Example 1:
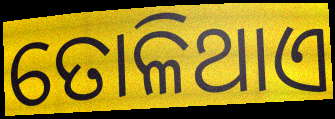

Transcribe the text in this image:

ତୋଳିଥାଏ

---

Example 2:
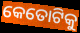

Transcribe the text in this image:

କେତୋଟିକୁ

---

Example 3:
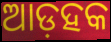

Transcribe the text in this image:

ଆଡ଼ହକ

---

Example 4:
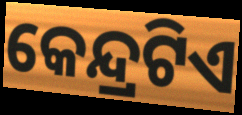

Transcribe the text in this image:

କେନ୍ଦ୍ରଟିଏ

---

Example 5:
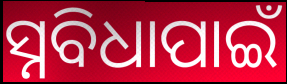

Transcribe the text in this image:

ସ୍ନବିଧାପାଇଁ